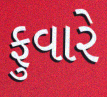
ફુવારે